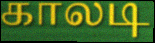
காலடி